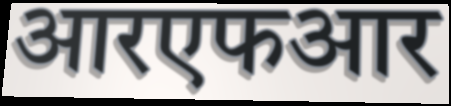
आरएफआर